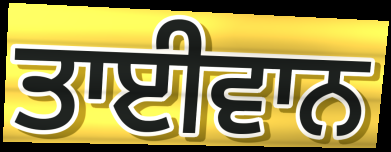
ਤਾਈਵਾਨ